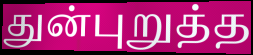
துன்புறுத்த